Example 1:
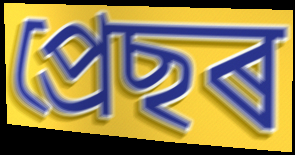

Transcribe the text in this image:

প্ৰেছৰ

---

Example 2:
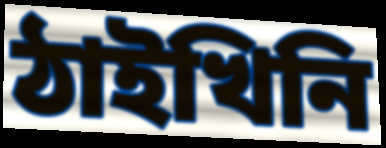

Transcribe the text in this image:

ঠাইখিনি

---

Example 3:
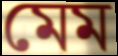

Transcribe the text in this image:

মেম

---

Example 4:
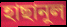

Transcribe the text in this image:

হাছানুল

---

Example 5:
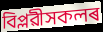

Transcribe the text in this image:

বিপ্লৱীসকলৰ